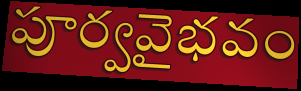
పూర్వవైభవం